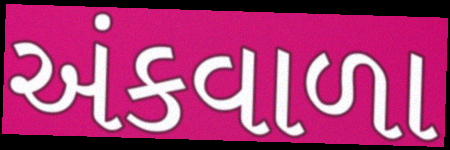
અંકવાળા